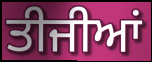
ਤੀਜੀਆਂ